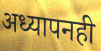
अध्यापनही